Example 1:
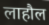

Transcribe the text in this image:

लाहौल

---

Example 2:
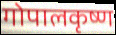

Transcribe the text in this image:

गोपालकृष्‍ण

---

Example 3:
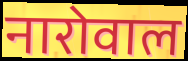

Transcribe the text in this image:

नारोवाल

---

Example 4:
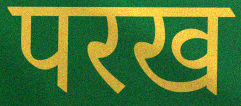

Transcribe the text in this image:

परख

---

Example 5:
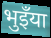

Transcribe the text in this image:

भुइँया